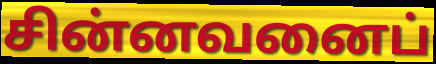
சின்னவனைப்